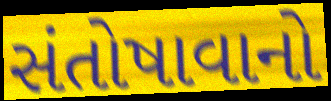
સંતોષાવાનો